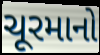
ચૂરમાનો